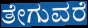
ತೇಗುವರೆ